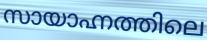
സായാഹ്നത്തിലെ